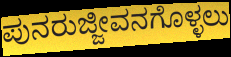
ಪುನರುಜ್ಜೀವನಗೊಳ್ಳಲು